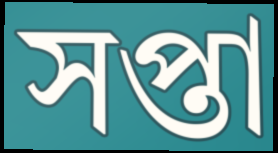
সপ্তা